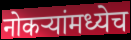
नोकऱ्यांमध्येच